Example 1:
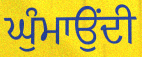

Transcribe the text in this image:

ਘੁੰਮਾਉਂਦੀ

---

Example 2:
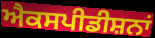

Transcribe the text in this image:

ਐਕਸਪੀਡੀਸ਼ਨਾਂ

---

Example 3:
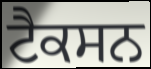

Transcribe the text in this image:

ਟੈਕਸਨ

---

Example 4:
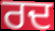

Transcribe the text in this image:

ਰਦ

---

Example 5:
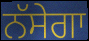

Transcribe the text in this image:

ਨੱਸੇਗਾ